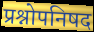
प्रश्नोपनिषद